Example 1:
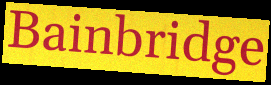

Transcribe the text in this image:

Bainbridge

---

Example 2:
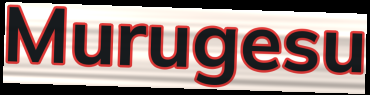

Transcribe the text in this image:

Murugesu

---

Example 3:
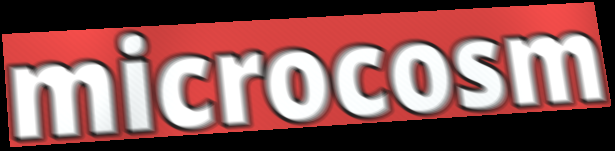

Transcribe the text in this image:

microcosm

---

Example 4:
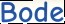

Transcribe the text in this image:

Bode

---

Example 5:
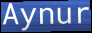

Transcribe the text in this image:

Aynur